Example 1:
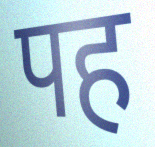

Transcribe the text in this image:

पह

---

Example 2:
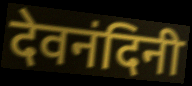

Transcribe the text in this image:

देवनंदिनी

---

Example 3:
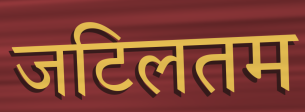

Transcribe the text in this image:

जटिलतम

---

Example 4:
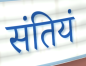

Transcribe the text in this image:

संतियं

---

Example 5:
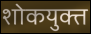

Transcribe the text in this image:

शोकयुक्त